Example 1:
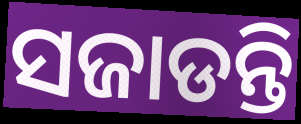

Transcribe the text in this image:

ସଜାଡନ୍ତି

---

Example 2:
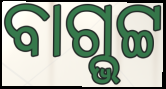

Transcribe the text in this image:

ବାଗ୍ଭଟ୍ଟ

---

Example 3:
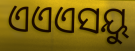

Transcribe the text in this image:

ଏଏଏସୟୁ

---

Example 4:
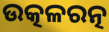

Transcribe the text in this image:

ଉତ୍କଳରତ୍ନ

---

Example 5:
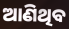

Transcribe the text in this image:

ଆଣିଥିବ